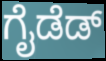
ಗೈಡೆಡ್